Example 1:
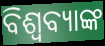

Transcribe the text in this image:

ବିଶ୍ୱବ୍ୟାଙ୍କ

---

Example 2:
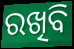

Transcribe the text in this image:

ରଖିବି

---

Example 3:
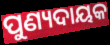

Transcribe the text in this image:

ପୁଣ୍ୟଦାୟକ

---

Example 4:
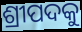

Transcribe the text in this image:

ଶ୍ରୀପଦକୁ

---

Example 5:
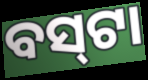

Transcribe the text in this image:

ବସ୍‍ଟା